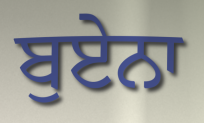
ਬੁਏਨਾ